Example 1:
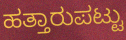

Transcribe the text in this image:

ಹತ್ತಾರುಪಟ್ಟು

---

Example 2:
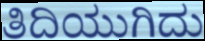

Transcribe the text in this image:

ತಿದಿಯುಗಿದು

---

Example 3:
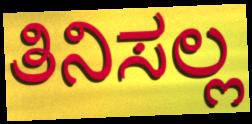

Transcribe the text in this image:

ತಿನಿಸಲ್ಲ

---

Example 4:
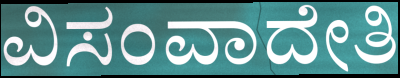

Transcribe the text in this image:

ವಿಸಂವಾದೇತಿ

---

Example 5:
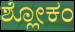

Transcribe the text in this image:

ಶ್ಲೋಕಂ